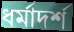
ধর্মাদর্শ